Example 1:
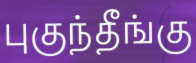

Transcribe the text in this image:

புகுந்தீங்கு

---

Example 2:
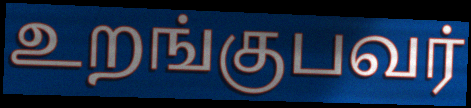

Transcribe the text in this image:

உறங்குபவர்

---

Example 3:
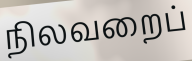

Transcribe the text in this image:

நிலவறைப்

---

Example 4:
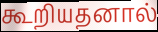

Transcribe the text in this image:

கூறியதனால்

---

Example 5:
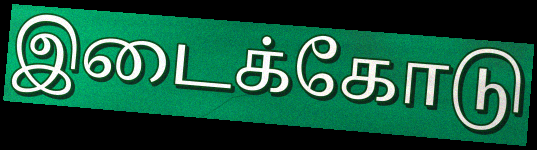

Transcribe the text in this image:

இடைக்கோடு